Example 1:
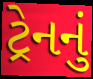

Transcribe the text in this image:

ટ્રેનનું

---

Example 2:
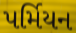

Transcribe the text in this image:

પર્મિયન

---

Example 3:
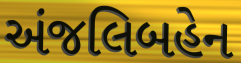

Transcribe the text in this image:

અંજલિબહેન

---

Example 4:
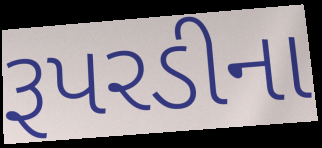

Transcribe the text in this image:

રૂપરડીના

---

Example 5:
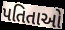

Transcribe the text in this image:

પતિતાઓ